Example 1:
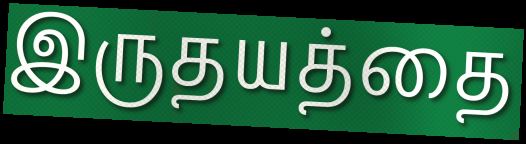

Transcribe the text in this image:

இருதயத்தை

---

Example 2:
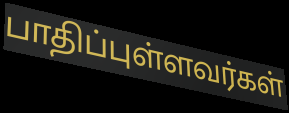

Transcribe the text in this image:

பாதிப்புள்ளவர்கள்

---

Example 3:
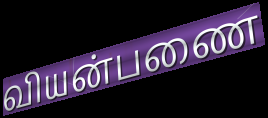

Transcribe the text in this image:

வியன்பணை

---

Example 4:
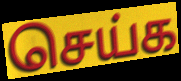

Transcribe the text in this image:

செய்க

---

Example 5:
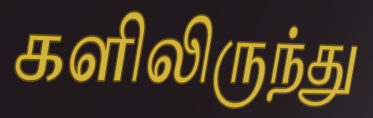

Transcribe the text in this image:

களிலிருந்து